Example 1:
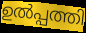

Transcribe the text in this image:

ഉൽപ്പത്തി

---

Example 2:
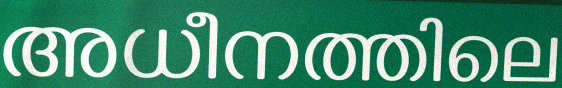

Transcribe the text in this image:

അധീനത്തിലെ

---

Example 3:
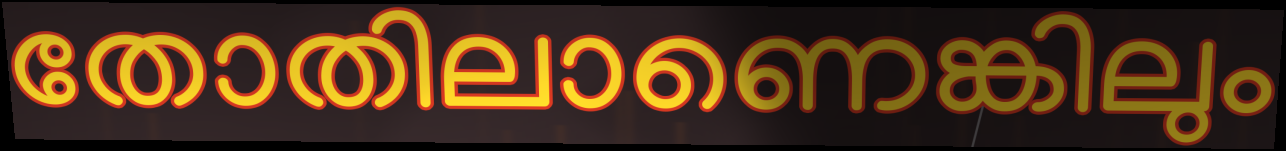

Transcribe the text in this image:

തോതിലാണെങ്കിലും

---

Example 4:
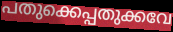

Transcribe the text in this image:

പതുക്കെപ്പതുക്കവേ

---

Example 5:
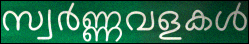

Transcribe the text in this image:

സ്വർണ്ണവളകൾ